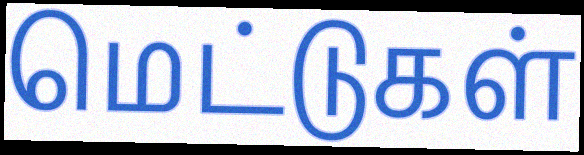
மெட்டுகள்